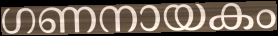
ഗണനായകം